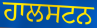
ਹਾਲਸਟਨ